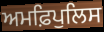
ਅਮਫ਼ਿਪੁਲਿਸ